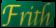
Frith